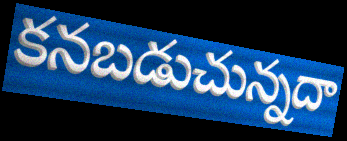
కనబడుచున్నదా